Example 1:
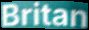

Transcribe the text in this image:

Britan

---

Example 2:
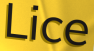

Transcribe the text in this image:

Lice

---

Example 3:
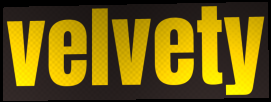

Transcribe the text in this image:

velvety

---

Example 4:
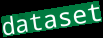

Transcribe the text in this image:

dataset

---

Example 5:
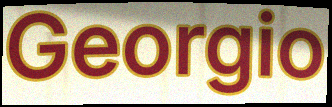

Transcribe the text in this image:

Georgio